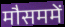
मौसममें